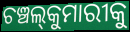
ଚଞ୍ଚଲ୍‍କୁମାରୀକୁ